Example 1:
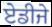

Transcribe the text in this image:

ਏਡੀਜੇ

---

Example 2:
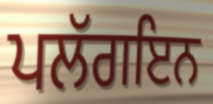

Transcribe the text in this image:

ਪਲੱਗਇਨ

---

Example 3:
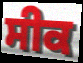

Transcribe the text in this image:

ਸੀਕ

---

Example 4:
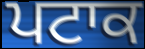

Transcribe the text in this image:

ਪਟਾਕ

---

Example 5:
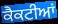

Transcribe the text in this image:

ਕੈਕਟੀਆਂ